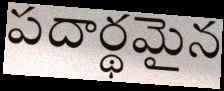
పదార్థమైన